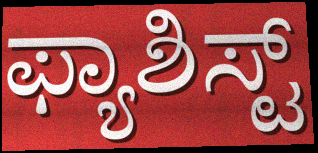
ಫ್ಯಾಶಿಸ್ಟ್